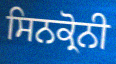
ਸਿਨਕ੍ਰੋਨੀ